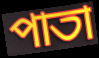
পাতা